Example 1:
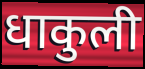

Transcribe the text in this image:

धाकुली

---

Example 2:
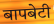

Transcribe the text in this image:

बापबेटी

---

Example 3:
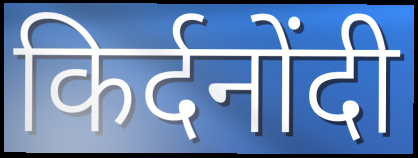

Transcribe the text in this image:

किर्दनोंदी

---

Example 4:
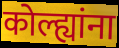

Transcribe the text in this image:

कोल्ह्यांना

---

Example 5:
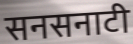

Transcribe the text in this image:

सनसनाटी